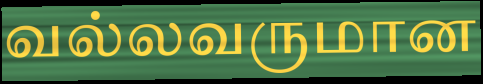
வல்லவருமான